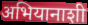
अभियानाशी